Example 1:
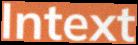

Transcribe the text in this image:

Intext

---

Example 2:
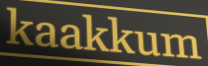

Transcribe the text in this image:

kaakkum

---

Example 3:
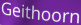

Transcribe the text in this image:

Geithoorn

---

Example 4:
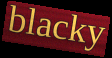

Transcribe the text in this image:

blacky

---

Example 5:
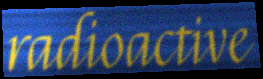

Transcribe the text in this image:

radioactive